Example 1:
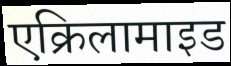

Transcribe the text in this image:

एक्रिलामाइड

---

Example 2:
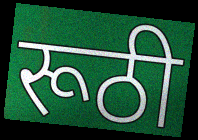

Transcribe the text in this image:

रूठी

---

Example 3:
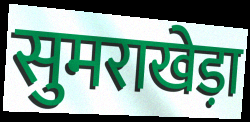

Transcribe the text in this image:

सुमराखेड़ा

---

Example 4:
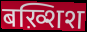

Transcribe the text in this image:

बख़्शिश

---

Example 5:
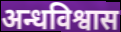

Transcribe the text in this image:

अन्धविश्वास